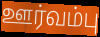
ஊர்வம்பு